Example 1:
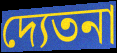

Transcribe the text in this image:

দ্যেতনা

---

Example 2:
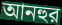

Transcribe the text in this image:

আনহুর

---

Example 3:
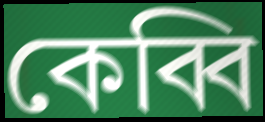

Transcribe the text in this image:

কেব্বি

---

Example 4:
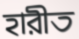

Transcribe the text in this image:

হারীত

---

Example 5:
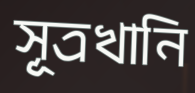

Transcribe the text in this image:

সূত্রখানি